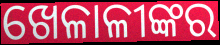
ଖେଳାଳୀଙ୍କର